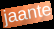
jaante